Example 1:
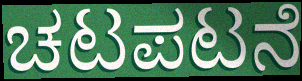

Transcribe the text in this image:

ಚಟಪಟನೆ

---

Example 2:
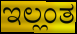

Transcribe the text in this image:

ಇಲ್ಲಂತ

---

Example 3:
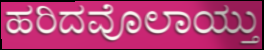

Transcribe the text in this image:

ಹರಿದವೊಲಾಯ್ತು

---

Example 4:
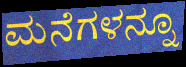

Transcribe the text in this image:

ಮನೆಗಳನ್ನೂ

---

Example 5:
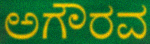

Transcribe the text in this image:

ಅಗೌರವ